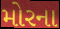
મોરના